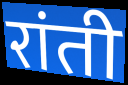
रांती